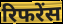
रिफरेंस